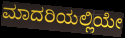
ಮಾದರಿಯಲ್ಲಿಯೇ